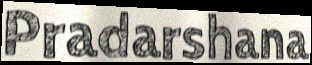
Pradarshana